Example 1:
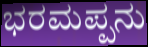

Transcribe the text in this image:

ಭರಮಪ್ಪನು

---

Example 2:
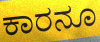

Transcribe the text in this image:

ಕಾರನೂ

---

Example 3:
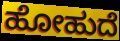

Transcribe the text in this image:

ಹೋಹುದೆ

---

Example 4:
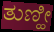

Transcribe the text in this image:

ತುಣ್ಹೀ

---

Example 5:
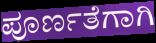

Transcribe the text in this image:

ಪೂರ್ಣತೆಗಾಗಿ